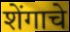
शेंगाचे